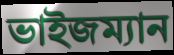
ভাইজম্যান